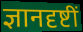
ज्ञानदृष्टीं